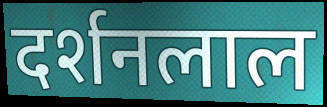
दर्शनलाल